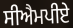
ਸੀਐਮਪੀਏ